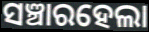
ସଞ୍ଚାରହେଲା